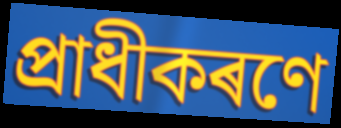
প্ৰাধীকৰণে